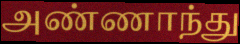
அண்ணாந்து